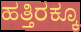
ಹತ್ತಿರಕ್ಕೂ